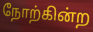
நோற்கின்ற